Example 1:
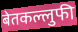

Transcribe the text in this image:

बेतकल्लुफी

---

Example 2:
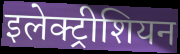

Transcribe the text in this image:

इलेक्ट्रीशियन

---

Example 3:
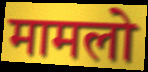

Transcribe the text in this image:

मामलो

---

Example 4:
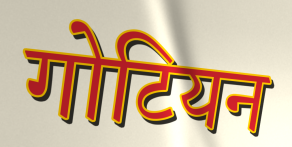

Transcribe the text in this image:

गोटियन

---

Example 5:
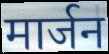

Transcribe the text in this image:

मार्जन